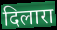
दिलारा